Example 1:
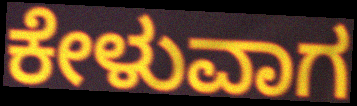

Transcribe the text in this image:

ಕೇಳುವಾಗ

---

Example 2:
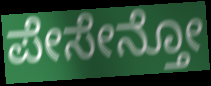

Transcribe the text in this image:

ಪೇಸೇನ್ತೋ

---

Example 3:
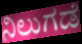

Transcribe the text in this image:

ನಿಲುಗಡೆ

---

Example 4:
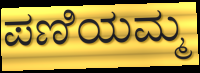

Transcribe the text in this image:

ಪಣಿಯಮ್ಮ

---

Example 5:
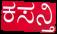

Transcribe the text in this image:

ಕಸನ್ತಿ